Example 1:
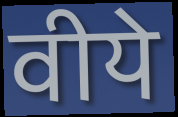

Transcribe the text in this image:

वीये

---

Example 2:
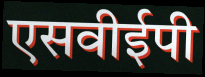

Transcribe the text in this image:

एसवीईपी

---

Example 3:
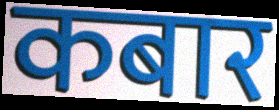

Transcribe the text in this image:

कबार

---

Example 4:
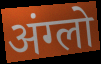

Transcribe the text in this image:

अंग्लो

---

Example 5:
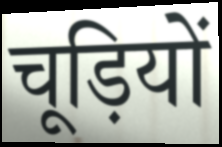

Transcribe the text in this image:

चूड़ियों